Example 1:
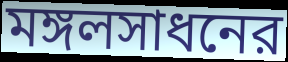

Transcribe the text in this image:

মঙ্গলসাধনের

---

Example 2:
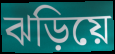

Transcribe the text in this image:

ঝড়িয়ে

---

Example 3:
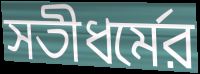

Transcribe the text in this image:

সতীধর্মের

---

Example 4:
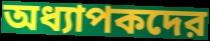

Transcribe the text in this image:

অধ্যাপকদের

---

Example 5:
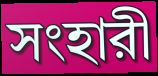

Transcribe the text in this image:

সংহারী